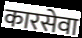
कारसेवा